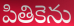
పితికెను